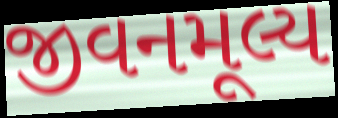
જીવનમૂલ્ય